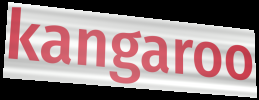
kangaroo